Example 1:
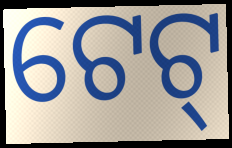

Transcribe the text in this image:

ଟେଟ୍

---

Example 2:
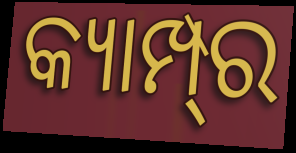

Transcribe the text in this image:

କ୍ୟାମ୍ପ୍‍ର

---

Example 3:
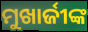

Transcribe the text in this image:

ମୁଖାର୍ଜୀଙ୍କ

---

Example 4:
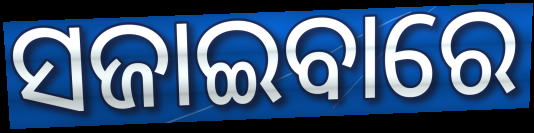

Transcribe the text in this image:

ସଜାଇବାରେ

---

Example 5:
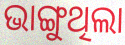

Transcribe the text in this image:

ଭାଙ୍ଗୁଥିଲା